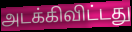
அடக்கிவிட்டது